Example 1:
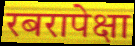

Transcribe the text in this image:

रबरापेक्षा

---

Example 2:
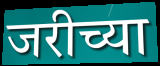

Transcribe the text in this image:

जरीच्या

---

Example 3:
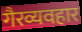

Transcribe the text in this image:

गैरव्यवहार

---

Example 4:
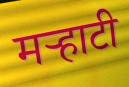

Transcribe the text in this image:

मऱ्हाटी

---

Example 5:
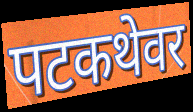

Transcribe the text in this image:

पटकथेवर